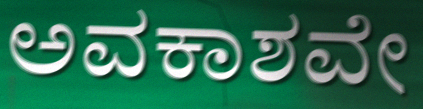
ಅವಕಾಶವೇ